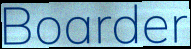
Boarder